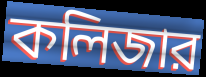
কলিজার